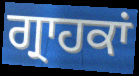
ਗ੍ਰਾਹਕਾਂ